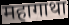
महागाथा